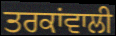
ਤਰਕਾਂਵਾਲੀ